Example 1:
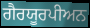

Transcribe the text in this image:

ਗੈਰਯੂਰਪੀਅਨ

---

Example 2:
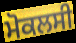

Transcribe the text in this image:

ਮੋਕਲਸੀ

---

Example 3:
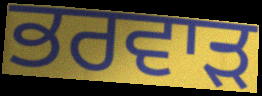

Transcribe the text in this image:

ਭਰਵਾੜ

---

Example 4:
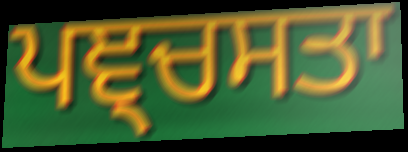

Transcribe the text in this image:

ਪਞ੍ਚਸਤਾ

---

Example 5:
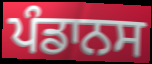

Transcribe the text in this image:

ਪੰਡਾਨਸ